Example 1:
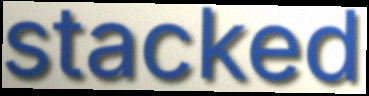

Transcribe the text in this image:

stacked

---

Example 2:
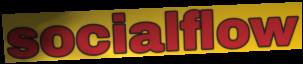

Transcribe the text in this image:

socialflow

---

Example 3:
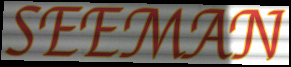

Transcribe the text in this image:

SEEMAN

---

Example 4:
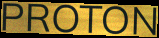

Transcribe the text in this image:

PROTON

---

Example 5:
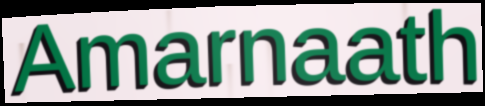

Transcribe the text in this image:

Amarnaath